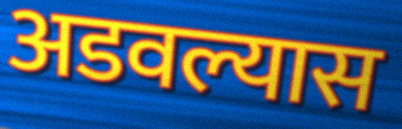
अडवल्यास